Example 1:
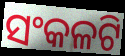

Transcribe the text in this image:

ସଂକଳଟି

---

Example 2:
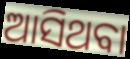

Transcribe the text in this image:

ଆସିଥବା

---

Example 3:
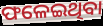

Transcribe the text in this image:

ଫଳେଇଥିବା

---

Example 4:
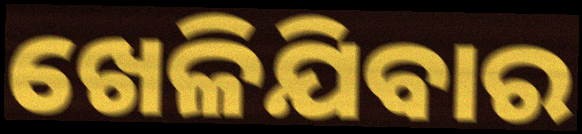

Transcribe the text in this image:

ଖେଳିଯିବାର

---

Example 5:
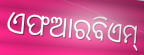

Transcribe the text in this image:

ଏଫଆରବିଏମ୍